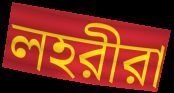
লহরীরা